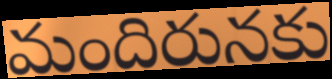
మందిరునకు